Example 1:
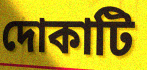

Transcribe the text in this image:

দোকাটি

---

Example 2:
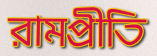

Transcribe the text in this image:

রামপ্রীতি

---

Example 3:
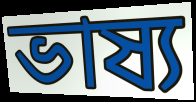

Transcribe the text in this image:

ভাষ্য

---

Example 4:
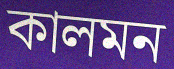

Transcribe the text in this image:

কালমন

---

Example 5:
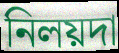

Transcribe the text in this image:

নিলয়দা